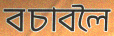
বচাবলৈ